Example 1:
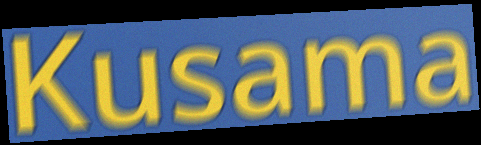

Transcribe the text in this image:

Kusama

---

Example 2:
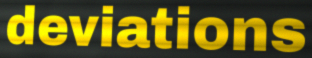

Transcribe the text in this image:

deviations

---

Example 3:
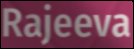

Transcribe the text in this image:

Rajeeva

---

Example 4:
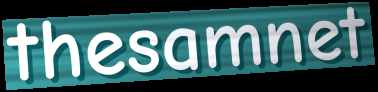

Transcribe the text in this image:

thesamnet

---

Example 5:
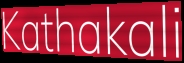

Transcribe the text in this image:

Kathakali